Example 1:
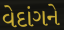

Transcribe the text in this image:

વેદાંગને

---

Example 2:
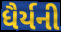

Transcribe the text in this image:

ધૈર્યની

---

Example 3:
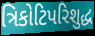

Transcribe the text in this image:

ત્રિકોટિપરિશુદ્ધ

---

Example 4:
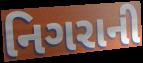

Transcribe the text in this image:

નિગરાની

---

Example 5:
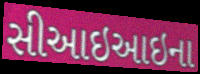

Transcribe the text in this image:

સીઆઇઆઇના